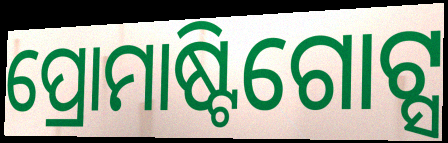
ପ୍ରୋମାଷ୍ଟିଗୋଟ୍ସ